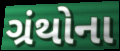
ગ્રંથોના